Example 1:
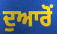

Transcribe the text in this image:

ਦੁਆਰੋਂ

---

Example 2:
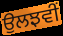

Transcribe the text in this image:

ਉਲਝਵੀਂ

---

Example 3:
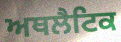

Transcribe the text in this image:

ਅਥਲੈਟਿਕ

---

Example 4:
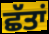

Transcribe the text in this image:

ਛੱਤਾਂ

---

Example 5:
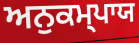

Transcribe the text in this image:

ਅਨੁਕਮ੍ਪਾਯ